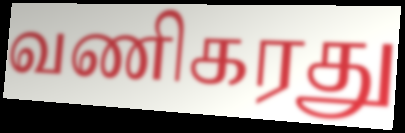
வணிகரது